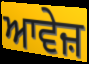
ਆਵੇਜ਼